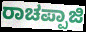
ರಾಚಪ್ಪಾಜಿ